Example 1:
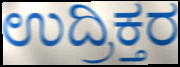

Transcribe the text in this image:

ಉದ್ರಿಕ್ತರ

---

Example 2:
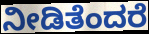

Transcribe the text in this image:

ನೀಡಿತೆಂದರೆ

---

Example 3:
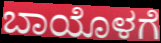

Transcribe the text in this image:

ಬಾಯೊಳಗೆ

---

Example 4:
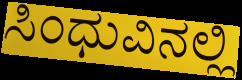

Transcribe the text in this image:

ಸಿಂಧುವಿನಲ್ಲಿ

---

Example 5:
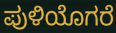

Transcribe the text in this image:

ಪುಳಿಯೊಗರೆ